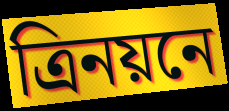
ত্রিনয়নে